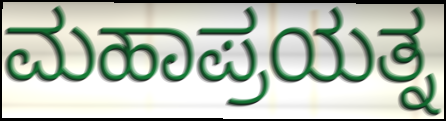
ಮಹಾಪ್ರಯತ್ನ